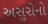
અસુરોનો